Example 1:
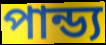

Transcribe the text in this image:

পান্ড্য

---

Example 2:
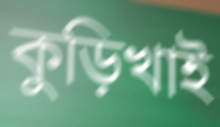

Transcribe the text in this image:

কুড়িখাই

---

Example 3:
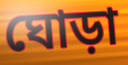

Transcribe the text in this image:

ঘোড়া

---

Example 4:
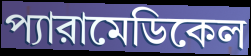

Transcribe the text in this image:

প্যারামেডিকেল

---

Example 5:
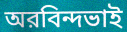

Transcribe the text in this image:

অরবিন্দভাই